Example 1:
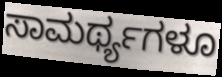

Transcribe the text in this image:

ಸಾಮರ್ಥ್ಯಗಳೂ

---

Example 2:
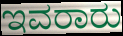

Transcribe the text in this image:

ಇವರಾರು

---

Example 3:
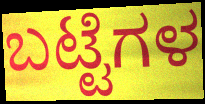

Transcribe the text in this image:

ಬಟ್ಟೆಗಳ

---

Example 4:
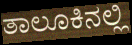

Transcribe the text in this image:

ತಾಲೂಕಿನಲ್ಲಿ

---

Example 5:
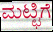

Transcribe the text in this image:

ಮಟ್ಟಿಗೆ